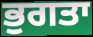
ਭੁਗਤਾ